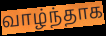
வாழ்ந்தாக